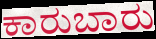
ಕಾರುಬಾರು